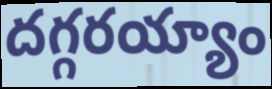
దగ్గరయ్యాం